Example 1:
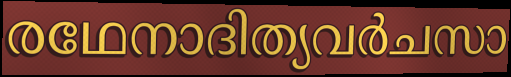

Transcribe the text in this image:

രഥേനാദിത്യവർചസാ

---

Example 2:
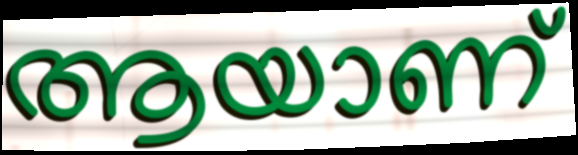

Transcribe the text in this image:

ആയാണ്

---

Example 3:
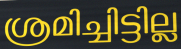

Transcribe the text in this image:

ശ്രമിച്ചിട്ടില്ല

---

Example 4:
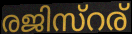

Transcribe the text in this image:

രജിസ്റര്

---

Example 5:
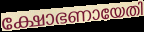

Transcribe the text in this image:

ക്ഷോഭണായേതി